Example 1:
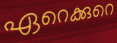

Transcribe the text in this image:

ഏറെക്കുറെ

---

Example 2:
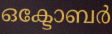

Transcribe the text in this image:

ഒക്ടോബർ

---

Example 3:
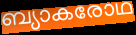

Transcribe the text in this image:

ബ്യാകരോഥ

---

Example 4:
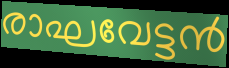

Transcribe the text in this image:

രാഘവേട്ടൻ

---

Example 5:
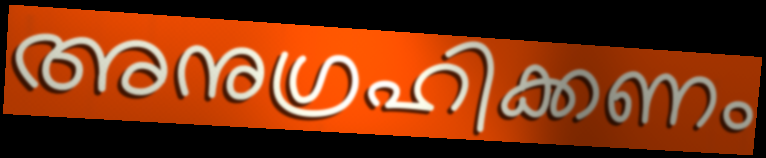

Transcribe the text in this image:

അനുഗ്രഹിക്കണം